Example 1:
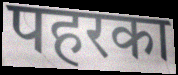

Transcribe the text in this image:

पहरका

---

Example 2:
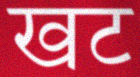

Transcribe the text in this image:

खट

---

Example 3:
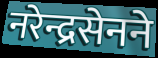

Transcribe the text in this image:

नरेन्द्रसेनने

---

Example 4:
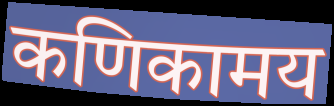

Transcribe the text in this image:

कणिकामय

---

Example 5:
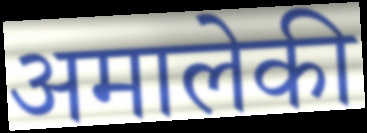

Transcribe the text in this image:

अमालेकी